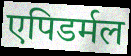
एपिडर्मल